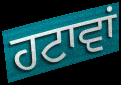
ਹਟਾਵਾਂ